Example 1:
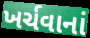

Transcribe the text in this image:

ખર્ચવાનાં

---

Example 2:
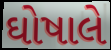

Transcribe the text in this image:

ઘોષાલે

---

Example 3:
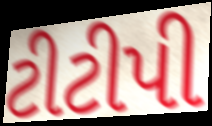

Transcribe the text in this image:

ટીટીપી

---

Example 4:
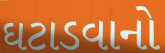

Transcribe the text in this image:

ઘટાડવાનો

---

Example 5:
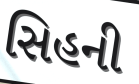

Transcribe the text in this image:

સિહની